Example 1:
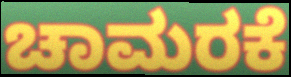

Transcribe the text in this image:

ಚಾಮರಕೆ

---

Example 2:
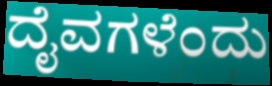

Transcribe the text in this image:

ದೈವಗಳೆಂದು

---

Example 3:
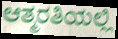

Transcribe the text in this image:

ಆತ್ಮರತಿಯಲ್ಲಿ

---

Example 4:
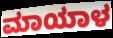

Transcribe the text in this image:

ಮಾಯಾಳ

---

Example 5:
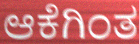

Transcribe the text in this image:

ಆಕೆಗಿಂತ